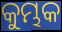
କୁମ୍ଭକ